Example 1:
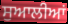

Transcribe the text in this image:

ਸੁਆਲੀਆਂ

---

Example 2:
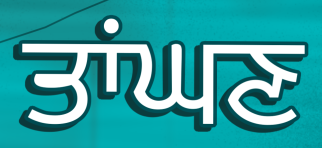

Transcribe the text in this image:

ਤਾਂਘਣ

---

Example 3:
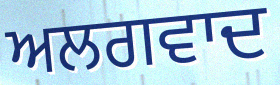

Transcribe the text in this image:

ਅਲਗਵਾਦ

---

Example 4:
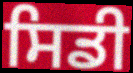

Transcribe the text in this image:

ਸਿਡੀ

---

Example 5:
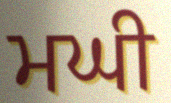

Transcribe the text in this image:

ਮਘੀ